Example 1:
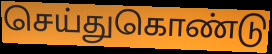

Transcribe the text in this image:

செய்துகொண்டு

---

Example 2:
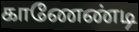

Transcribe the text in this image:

காணேண்டி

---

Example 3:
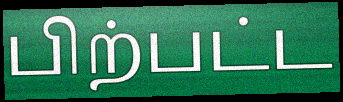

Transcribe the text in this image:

பிற்பட்ட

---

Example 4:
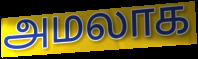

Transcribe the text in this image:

அமலாக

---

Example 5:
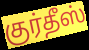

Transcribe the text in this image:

குர்தீஸ்